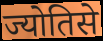
ज्योतिसे